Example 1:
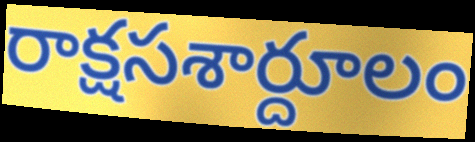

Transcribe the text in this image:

రాక్షసశార్దూలం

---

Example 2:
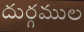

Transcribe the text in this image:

దుర్గముల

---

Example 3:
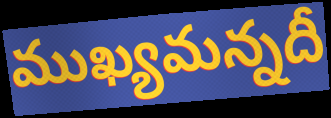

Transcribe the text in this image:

ముఖ్యమన్నదీ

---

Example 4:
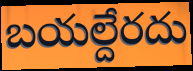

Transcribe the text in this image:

బయల్దేరదు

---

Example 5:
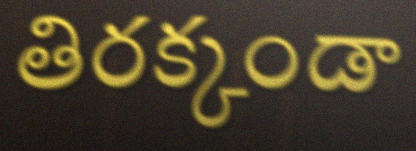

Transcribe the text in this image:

తిరక్కండా